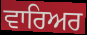
ਵਾਰਿਅਰ